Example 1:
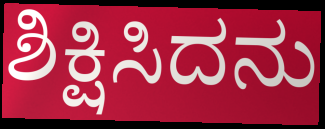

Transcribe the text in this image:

ಶಿಕ್ಷಿಸಿದನು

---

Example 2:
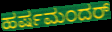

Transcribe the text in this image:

ಹರ್ಷಮಂದರ್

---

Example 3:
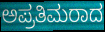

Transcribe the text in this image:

ಅಪ್ರತಿಮರಾದ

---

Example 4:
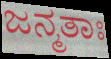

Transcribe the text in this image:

ಜನ್ಮತಾಃ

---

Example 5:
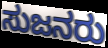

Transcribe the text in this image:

ಸುಜನರು